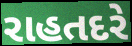
રાહતદરે